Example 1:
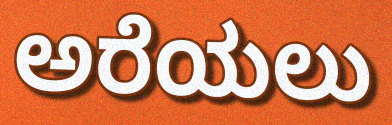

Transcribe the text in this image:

ಅರೆಯಲು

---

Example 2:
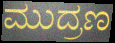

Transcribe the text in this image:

ಮುದ್ರಣ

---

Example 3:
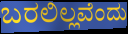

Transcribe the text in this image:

ಬರಲಿಲ್ಲವೆಂದು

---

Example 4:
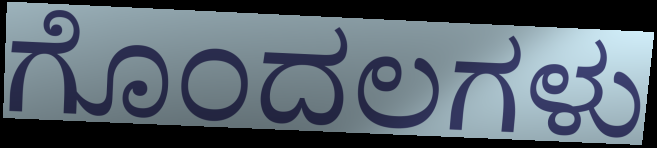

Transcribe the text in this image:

ಗೊಂದಲಗಳು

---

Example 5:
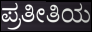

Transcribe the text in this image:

ಪ್ರತೀತಿಯ